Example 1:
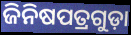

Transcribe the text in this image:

ଜିନିଷପତ୍ରଗୁଡ଼ା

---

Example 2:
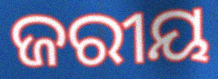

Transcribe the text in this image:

ଜରୀୟ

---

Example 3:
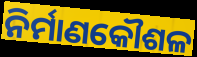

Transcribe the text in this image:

ନିର୍ମାଣକୌଶଳ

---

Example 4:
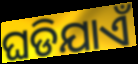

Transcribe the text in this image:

ଘଡିଯାଏଁ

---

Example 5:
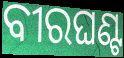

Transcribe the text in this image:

ବୀରଘଣ୍ଟ